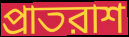
প্রাতরাশ